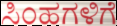
ಸಿಂಹಗಳಿಗೆ